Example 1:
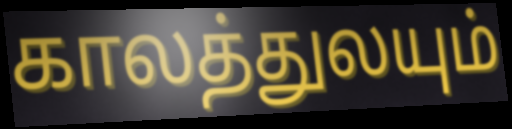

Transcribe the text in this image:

காலத்துலயும்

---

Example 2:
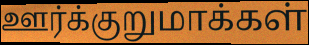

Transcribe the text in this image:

ஊர்க்குறுமாக்கள்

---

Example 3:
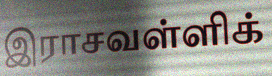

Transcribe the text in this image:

இராசவள்ளிக்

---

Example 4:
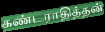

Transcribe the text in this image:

கண்டராதித்தன்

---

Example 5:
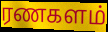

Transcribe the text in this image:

ரணகளம்